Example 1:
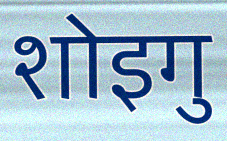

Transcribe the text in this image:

शोइगु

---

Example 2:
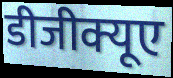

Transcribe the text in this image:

डीजीक्यूए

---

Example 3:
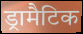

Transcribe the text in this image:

ड्रामैटिक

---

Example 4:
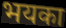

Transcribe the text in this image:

भयका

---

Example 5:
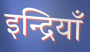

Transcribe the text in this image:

इन्द्रियाँ